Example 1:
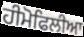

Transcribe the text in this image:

ਹੀਮੋਫਿਲੀਆ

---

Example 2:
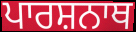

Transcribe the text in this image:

ਪਾਰਸ਼ਨਾਥ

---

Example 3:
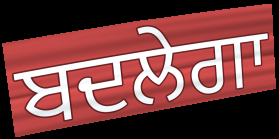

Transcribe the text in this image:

ਬਦਲੇਗਾ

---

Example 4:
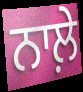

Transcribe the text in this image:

ਨਾਲ਼ੇ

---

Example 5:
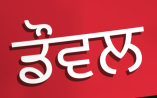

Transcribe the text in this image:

ਡੌਵਲ